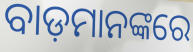
ବାଡ଼ମାନଙ୍କରେ